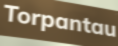
Torpantau